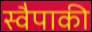
स्वैपाकी